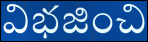
విభజించి